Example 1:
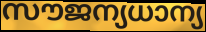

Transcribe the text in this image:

സൗജന്യധാന്യ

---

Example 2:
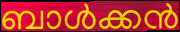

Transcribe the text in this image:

ബാൾക്കൻ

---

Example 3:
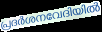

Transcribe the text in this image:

പ്രദർശനവേദിയിൽ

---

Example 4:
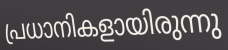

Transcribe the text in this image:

പ്രധാനികളായിരുന്നു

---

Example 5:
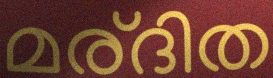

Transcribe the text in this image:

മര്ദിത